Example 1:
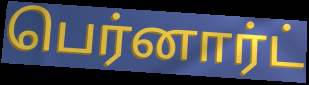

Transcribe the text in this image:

பெர்னார்ட்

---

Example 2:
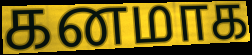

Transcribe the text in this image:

கனமாக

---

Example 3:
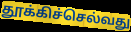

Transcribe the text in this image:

தூக்கிச்செல்வது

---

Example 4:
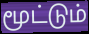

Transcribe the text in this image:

மூட்டும்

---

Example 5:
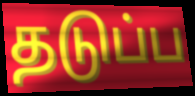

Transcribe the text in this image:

தடுப்ப